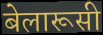
बेलारूसी